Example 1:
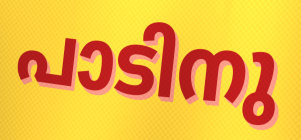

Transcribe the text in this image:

പാടിനു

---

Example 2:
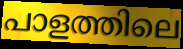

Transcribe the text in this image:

പാളത്തിലെ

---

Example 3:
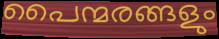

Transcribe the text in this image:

പൈന്മരങ്ങളും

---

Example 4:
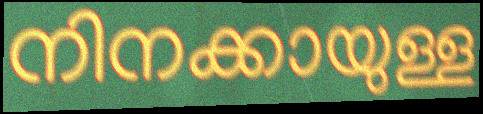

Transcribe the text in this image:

നിനക്കായുള്ള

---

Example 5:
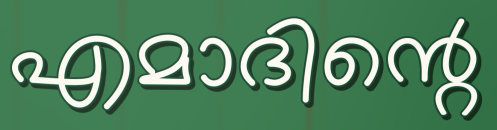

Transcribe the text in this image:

എമാദിന്റെ